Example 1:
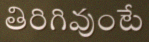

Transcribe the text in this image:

తిరిగివుంటే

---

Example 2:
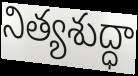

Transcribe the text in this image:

నిత్యశుద్ధా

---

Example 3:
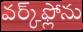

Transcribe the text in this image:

వర్క్‌ఫ్లోను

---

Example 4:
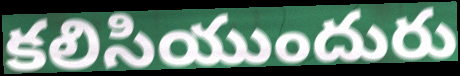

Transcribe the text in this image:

కలిసియుందురు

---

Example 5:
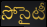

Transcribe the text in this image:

సోసైటీ